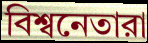
বিশ্বনেতারা